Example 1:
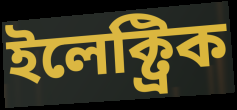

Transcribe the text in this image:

ইলেক্ট্ৰিক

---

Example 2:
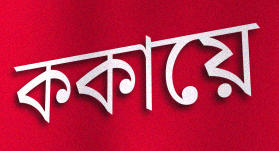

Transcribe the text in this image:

ককায়ে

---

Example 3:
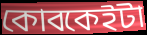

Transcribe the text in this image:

কোবকেইটা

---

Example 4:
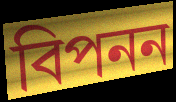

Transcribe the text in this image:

বিপনন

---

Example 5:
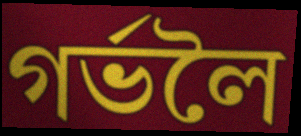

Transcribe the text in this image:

গৰ্ভলৈ